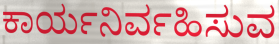
ಕಾರ್ಯನಿರ್ವಹಿಸುವ